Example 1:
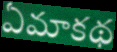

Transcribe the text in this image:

ఏమాకథ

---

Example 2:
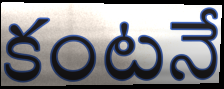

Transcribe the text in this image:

కంటనే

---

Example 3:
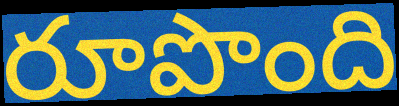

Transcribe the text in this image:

రూపొంది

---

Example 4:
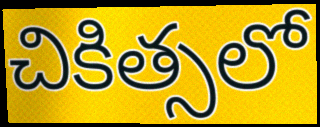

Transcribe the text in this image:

చికిత్సలో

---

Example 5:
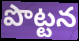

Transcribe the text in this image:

పొట్టన